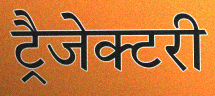
ट्रैजेक्‍टरी